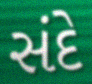
સંદે